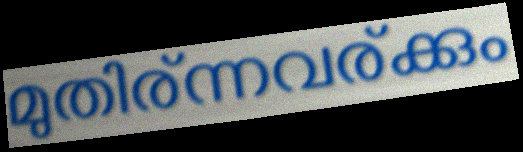
മുതിര്ന്നവര്ക്കും